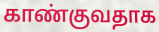
காண்குவதாக